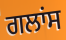
ਗਲਾਂਸ